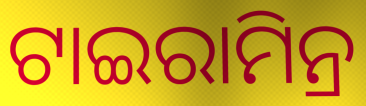
ଟାଇରାମିନ୍ର